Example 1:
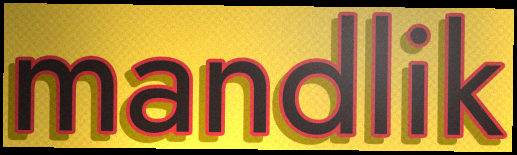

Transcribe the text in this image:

mandlik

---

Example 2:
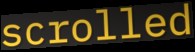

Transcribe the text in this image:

scrolled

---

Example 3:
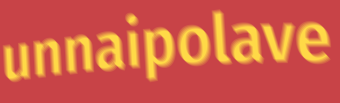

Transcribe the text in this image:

unnaipolave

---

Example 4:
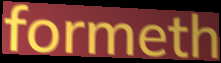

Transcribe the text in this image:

formeth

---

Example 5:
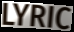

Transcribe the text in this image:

LYRIC